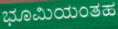
ಭೂಮಿಯಂತಹ